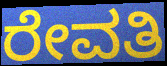
ರೇವತಿ